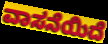
ವಾಸನೆಯಿದೆ